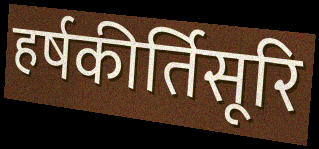
हर्षकीर्तिसूरि